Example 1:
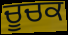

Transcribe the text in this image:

ਚੂਚਕ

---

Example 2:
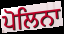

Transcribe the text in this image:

ਪੋਲਿਨਾ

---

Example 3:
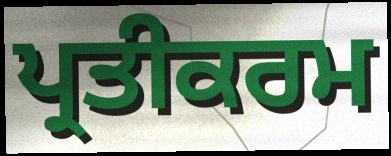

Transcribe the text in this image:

ਪ੍ਰਤੀਕਰਮ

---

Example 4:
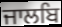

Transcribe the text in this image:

ਜਾਲਬਿ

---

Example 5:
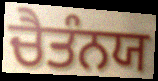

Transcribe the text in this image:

ਚੈਤੰਨਯ